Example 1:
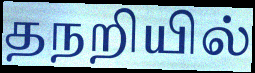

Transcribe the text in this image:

தநறியில்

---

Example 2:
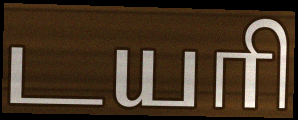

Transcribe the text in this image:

டயரி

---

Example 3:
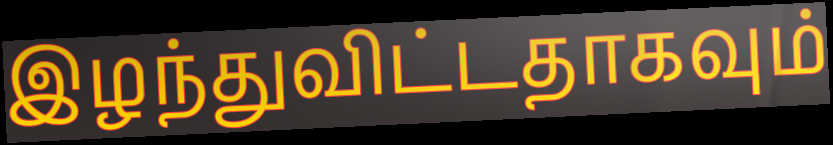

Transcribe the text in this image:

இழந்துவிட்டதாகவும்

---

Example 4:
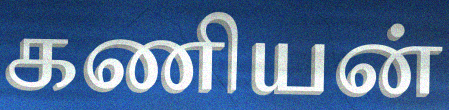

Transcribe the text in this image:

கணியன்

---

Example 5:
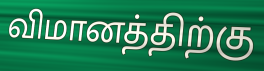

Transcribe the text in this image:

விமானத்திற்கு